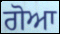
ਗੋਆ